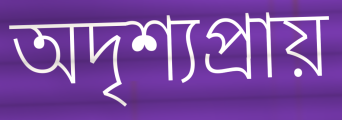
অদৃশ্যপ্ৰায়